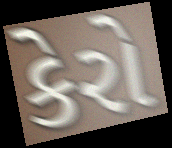
કેરો